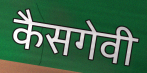
कैसगेवी